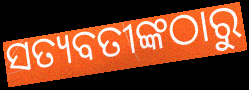
ସତ୍ୟବତୀଙ୍କଠାରୁ